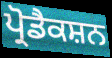
ਪ੍ਰੋਡੈਕਸ਼ਨ